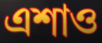
এশাও